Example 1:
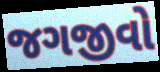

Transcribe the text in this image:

જગજીવો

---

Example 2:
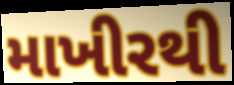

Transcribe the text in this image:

માખીરથી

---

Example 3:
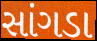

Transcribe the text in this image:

સાંગડા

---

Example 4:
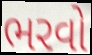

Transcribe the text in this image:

ભરવો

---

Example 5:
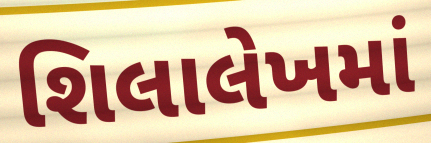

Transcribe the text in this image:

શિલાલેખમાં